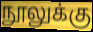
நூலுக்கு